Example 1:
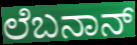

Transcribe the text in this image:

ಲೆಬನಾನ್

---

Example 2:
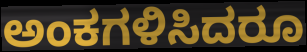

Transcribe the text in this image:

ಅಂಕಗಳಿಸಿದರೂ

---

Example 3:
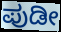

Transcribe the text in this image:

ಪುಡೀ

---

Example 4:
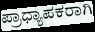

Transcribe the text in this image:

ಪ್ರಾಧ್ಯಾಪಕರಾಗಿ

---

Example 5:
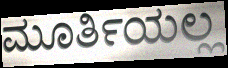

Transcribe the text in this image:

ಮೂರ್ತಿಯಲ್ಲ